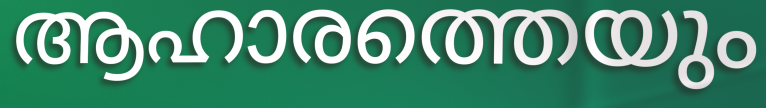
ആഹാരത്തെയും